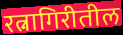
रत्नागिरीतील